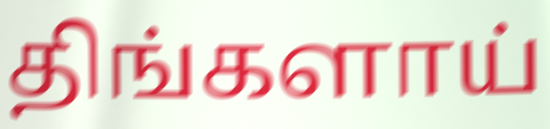
திங்களாய்